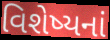
વિશેષ્યનાં